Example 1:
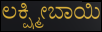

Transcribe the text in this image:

ಲಕ್ಷ್ಮೀಬಾಯಿ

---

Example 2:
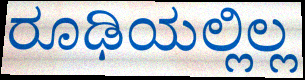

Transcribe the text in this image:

ರೂಢಿಯಲ್ಲಿಲ್ಲ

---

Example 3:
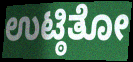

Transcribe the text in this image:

ಉಟ್ಠಿತೋ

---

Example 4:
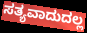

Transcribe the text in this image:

ಸತ್ಯವಾದುದಲ್ಲ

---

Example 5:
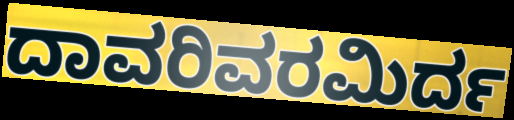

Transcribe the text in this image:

ದಾವರಿವರಮಿರ್ದ